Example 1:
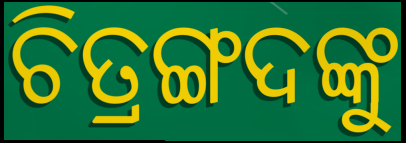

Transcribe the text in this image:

ଚିତ୍ରଙ୍ଗଦଙ୍କୁ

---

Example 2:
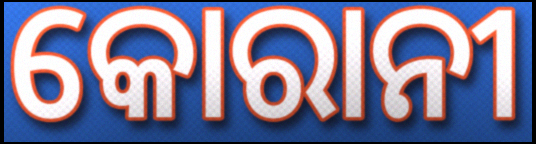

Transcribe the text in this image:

କୋରାନୀ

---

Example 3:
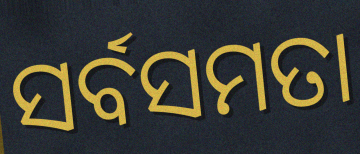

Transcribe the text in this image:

ସର୍ବସମତା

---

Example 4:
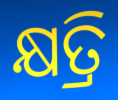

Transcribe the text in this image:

କ୍ଷତ୍ରି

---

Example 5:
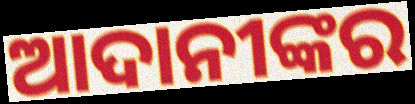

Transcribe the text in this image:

ଆଦାନୀଙ୍କର